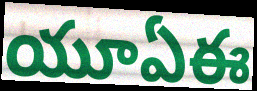
యూఏఈ